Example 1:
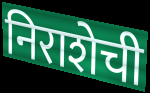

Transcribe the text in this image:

निराशेची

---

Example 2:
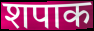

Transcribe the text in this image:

शपाक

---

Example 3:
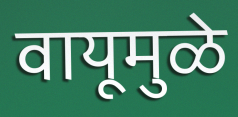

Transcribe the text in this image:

वायूमुळे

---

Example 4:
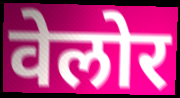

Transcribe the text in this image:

वेलोर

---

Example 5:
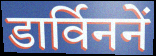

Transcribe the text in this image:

डार्विननें